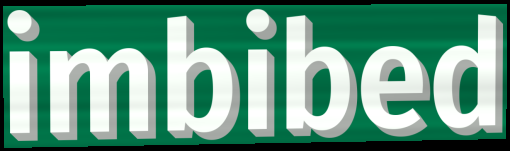
imbibed